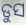
ଡୁସ